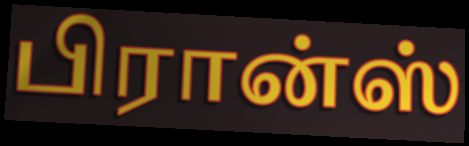
பிரான்ஸ்